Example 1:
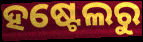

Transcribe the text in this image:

ହଷ୍ଟେଲରୁ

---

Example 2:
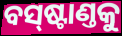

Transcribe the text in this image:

ବସ୍‌ଷ୍ଟାଣ୍ତକୁ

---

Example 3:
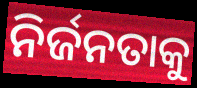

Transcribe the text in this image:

ନିର୍ଜନତାକୁ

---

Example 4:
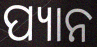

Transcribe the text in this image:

ପ୍ୟାନ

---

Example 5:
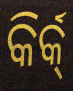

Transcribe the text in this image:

କିର୍କ୍